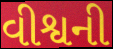
વીશ્વની